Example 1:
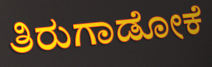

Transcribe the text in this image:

ತಿರುಗಾಡೋಕೆ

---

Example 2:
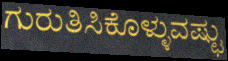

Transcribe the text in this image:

ಗುರುತಿಸಿಕೊಳ್ಳುವಷ್ಟು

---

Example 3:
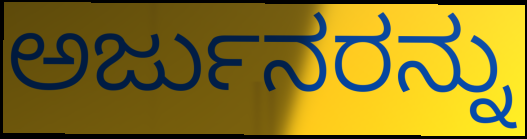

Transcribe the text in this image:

ಅರ್ಜುನರನ್ನು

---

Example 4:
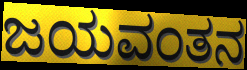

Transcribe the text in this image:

ಜಯವಂತನ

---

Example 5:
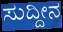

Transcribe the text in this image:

ಸುದ್ದೀನ